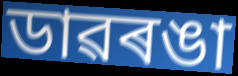
ডাৱৰঙা